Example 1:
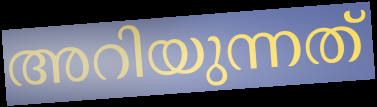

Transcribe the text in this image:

അറിയുന്നത്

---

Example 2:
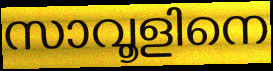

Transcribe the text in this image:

സാവൂളിനെ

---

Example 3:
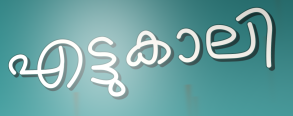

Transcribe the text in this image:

എട്ടുകാലി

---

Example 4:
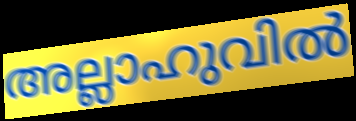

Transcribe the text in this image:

അല്ലാഹുവിൽ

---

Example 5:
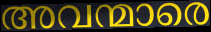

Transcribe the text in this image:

അവന്മാരെ